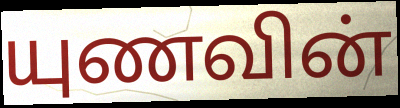
யுணவின்